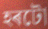
হৰটো